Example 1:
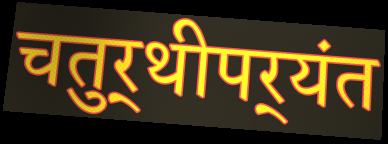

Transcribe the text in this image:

चतुर्थीपर्यंत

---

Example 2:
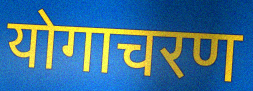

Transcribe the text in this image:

योगाचरण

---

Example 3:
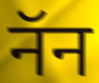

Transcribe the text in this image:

नॅन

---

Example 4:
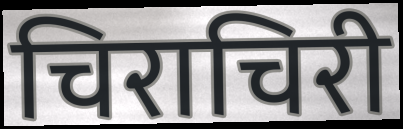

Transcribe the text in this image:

चिराचिरी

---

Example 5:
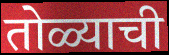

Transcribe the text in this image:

तोळ्याची